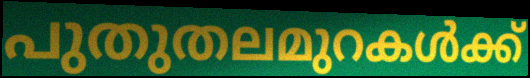
പുതുതലമുറകൾക്ക്